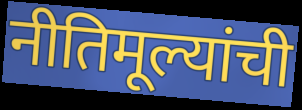
नीतिमूल्यांची